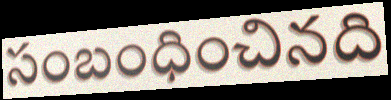
సంబంధించినది